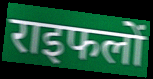
राइफलों